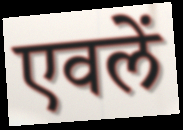
एवलें